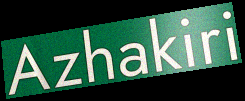
Azhakiri